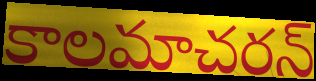
కాలమాచరన్